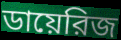
ডায়েরিজ